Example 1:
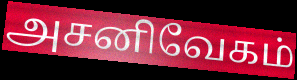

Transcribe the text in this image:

அசனிவேகம்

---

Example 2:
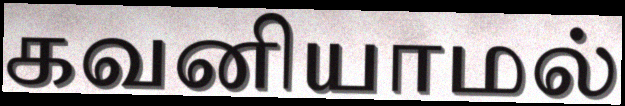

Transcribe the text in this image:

கவனியாமல்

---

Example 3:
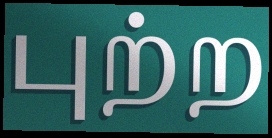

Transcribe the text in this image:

புற்ற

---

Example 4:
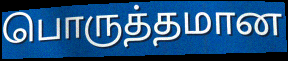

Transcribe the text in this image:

பொருத்தமான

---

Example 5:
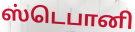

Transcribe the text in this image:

ஸ்டெபானி